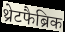
थ्रेटफैब्रिक